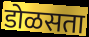
डोळसता